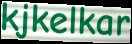
kjkelkar